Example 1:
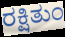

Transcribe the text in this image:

ರಕ್ಷಿತುಂ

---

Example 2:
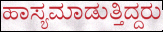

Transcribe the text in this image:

ಹಾಸ್ಯಮಾಡುತ್ತಿದ್ದರು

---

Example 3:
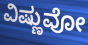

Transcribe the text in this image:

ವಿಷ್ಣುವೋ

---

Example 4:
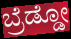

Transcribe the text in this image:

ಬ್ರೆಡ್ಡೋ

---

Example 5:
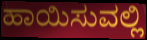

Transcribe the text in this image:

ಹಾಯಿಸುವಲ್ಲಿ